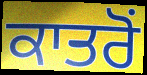
ਕਾਤਰੋੰ